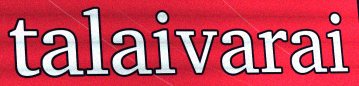
talaivarai